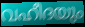
വഹീദയും